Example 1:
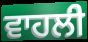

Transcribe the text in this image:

ਵਾਹਲੀ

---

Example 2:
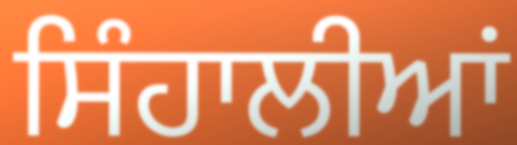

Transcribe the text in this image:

ਸਿੰਹਾਲੀਆਂ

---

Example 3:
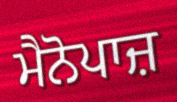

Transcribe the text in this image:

ਮੈਨੋਪਾਜ਼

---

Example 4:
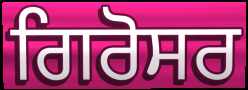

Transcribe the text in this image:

ਗਿਰੋਸਰ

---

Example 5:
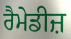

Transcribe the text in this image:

ਰੈਮੇਡੀਜ਼